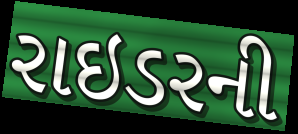
રાઇડરની